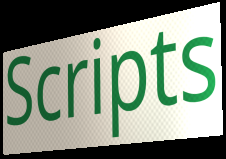
Scripts